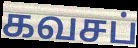
கவசப்